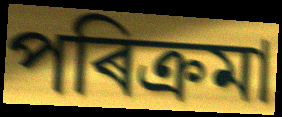
পৰিক্ৰমা